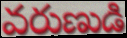
వరుణుడి